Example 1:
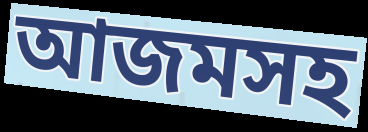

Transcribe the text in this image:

আজমসহ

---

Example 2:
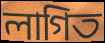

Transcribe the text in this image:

লাগিত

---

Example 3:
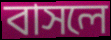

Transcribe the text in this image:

বাসলে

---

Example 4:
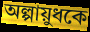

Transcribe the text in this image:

অল্পায়ুধকে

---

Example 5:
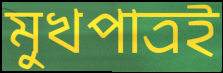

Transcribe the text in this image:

মুখপাত্রই